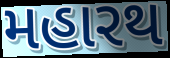
મહારથ